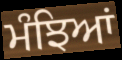
ਮੰਝਿਆਂ